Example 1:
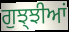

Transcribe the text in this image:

ਗੁਝ੍ਝੀਆਂ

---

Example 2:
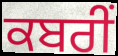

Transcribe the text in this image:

ਕਬਰੀਂ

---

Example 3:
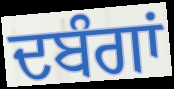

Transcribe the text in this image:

ਦਬੰਗਾਂ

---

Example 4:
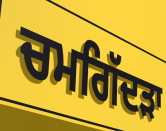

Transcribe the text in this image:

ਚਮਗਿੱਦੜਾ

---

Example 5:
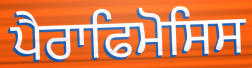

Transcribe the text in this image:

ਪੈਰਾਫਿਮੋਸਿਸ